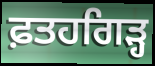
ਫ਼ਤਹਗਿੜ੍ਹ